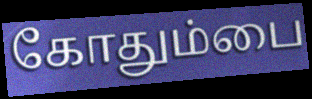
கோதும்பை